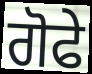
ਗੋਫੇ